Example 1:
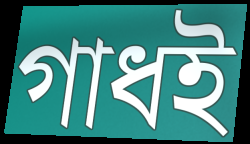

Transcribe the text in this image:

গাধই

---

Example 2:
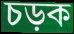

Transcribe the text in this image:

চড়ক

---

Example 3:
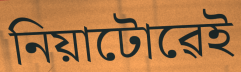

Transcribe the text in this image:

নিয়াটোৱেই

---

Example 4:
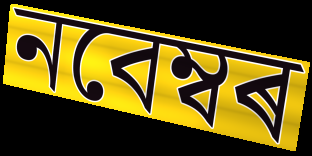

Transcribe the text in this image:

নবেম্বৰ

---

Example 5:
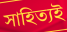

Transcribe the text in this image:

সাহিত্য়ই